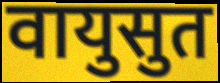
वायुसुत